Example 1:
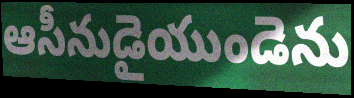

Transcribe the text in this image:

ఆసీనుడైయుండెను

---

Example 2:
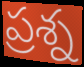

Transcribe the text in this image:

ప్రశ్న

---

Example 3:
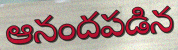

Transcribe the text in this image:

ఆనందపడిన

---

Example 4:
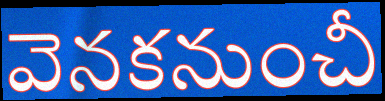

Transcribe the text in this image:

వెనకనుంచీ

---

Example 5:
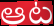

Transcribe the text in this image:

ఆట